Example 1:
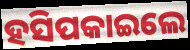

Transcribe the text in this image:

ହସିପକାଇଲେ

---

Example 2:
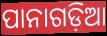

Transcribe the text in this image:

ପାନାଗଡ଼ିଆ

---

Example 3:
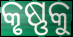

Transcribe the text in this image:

କୃଷ୍ଣକୁ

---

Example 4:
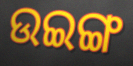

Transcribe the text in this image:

ଉଇଙ୍ଗ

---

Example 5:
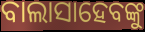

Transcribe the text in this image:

ବାଲାସାହେବଙ୍କୁ